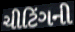
ચીટિંગની